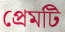
প্রেমটি